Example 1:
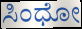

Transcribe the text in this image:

ಸಿಂಧೋ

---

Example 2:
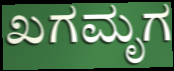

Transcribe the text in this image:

ಖಗಮೃಗ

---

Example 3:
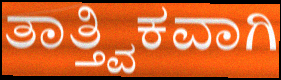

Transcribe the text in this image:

ತಾತ್ತ್ವಿಕವಾಗಿ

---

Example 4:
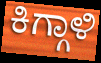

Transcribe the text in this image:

ಕಿಗ್ಗಾಳಿ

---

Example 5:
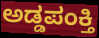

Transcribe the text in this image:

ಅಡ್ಡಪಂಕ್ತಿ